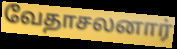
வேதாசலனார்